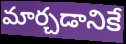
మార్చడానికే